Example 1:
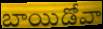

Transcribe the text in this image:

బాయిడోవా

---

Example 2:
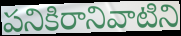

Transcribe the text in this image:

పనికిరానివాటిని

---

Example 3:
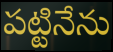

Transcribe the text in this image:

పట్టినేను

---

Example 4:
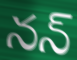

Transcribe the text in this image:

నన్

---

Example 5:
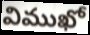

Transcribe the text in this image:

విముఖో